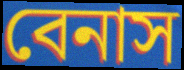
বেনাস